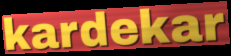
kardekar